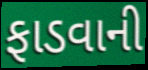
ફાડવાની